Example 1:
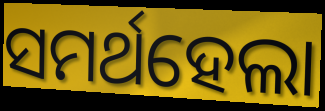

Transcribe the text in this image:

ସମର୍ଥହେଲା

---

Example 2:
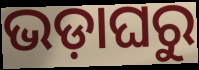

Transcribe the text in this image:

ଭଡ଼ାଘରୁ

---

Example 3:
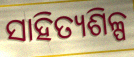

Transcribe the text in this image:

ସାହିତ୍ୟଶିଳ୍ପ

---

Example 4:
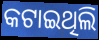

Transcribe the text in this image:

କଟାଇଥିଲି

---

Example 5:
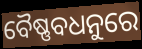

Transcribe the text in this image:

ବୈଷ୍ଣବଧନୁରେ